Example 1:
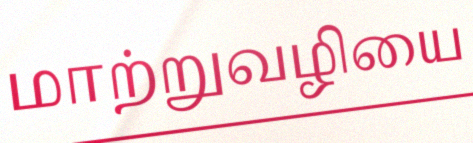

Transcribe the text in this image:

மாற்றுவழியை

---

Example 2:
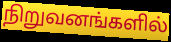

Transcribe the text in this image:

நிறுவனங்களில்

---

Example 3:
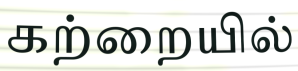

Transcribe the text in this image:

கற்றையில்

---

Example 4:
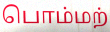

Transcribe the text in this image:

பொம்மற்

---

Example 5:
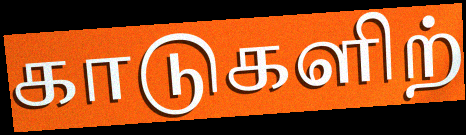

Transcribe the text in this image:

காடுகளிற்